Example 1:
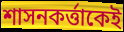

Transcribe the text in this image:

শাসনকর্ত্তাকেই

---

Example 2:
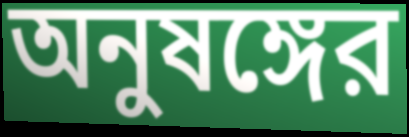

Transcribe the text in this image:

অনুষঙ্গের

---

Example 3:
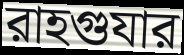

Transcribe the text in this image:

রাহগুযার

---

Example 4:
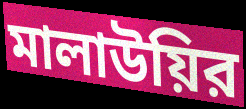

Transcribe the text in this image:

মালাউয়ির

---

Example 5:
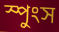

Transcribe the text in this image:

স্পুংস